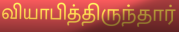
வியாபித்திருந்தார்